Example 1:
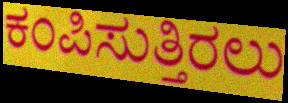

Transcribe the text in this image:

ಕಂಪಿಸುತ್ತಿರಲು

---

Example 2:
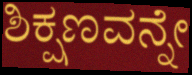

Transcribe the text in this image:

ಶಿಕ್ಷಣವನ್ನೇ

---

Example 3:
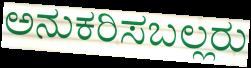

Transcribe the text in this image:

ಅನುಕರಿಸಬಲ್ಲರು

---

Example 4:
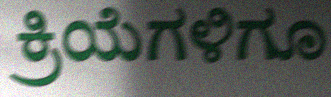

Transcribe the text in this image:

ಕ್ರಿಯೆಗಳಿಗೂ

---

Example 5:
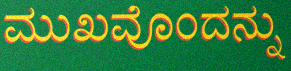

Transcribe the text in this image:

ಮುಖವೊಂದನ್ನು